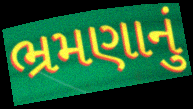
ભ્રમણાનું